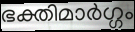
ഭക്തിമാർഗ്ഗം